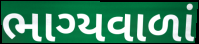
ભાગ્યવાળાં